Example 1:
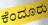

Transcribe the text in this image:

ಕೆಂದೂರು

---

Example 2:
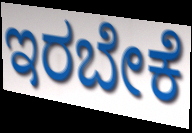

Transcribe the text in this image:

ಇರಬೇಕೆ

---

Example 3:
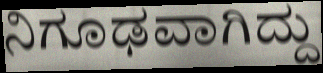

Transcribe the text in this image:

ನಿಗೂಢವಾಗಿದ್ದು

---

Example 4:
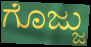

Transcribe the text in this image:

ಗೊಜ್ಜು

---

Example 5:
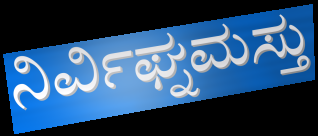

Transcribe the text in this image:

ನಿರ್ವಿಘ್ನಮಸ್ತು